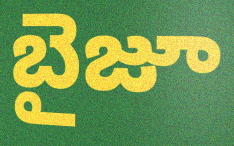
బైజూ